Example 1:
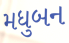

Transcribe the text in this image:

મધુબન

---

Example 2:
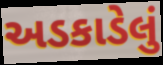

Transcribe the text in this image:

અડકાડેલું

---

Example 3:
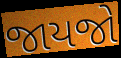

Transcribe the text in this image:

જાયજો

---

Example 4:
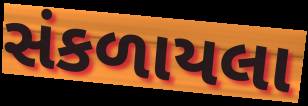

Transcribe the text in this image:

સંકળાયલા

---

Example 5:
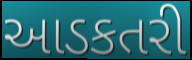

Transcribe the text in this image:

આડકતરી